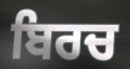
ਬਿਰਚ